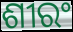
ଶୀରଂ